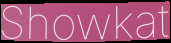
Showkat